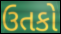
ઉતકો